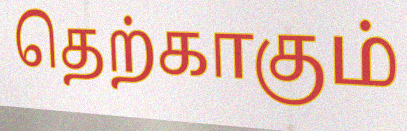
தெற்காகும்